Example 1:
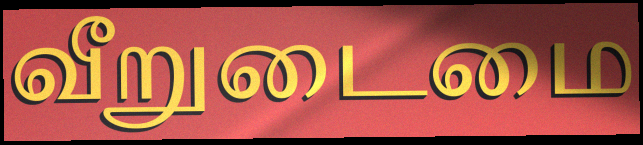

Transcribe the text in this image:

வீறுடைமை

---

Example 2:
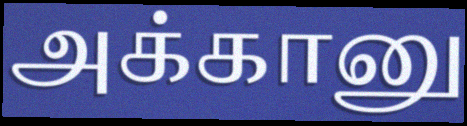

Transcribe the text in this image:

அக்கானு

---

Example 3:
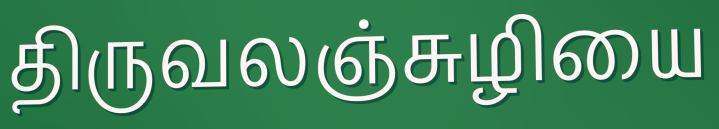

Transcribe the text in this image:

திருவலஞ்சுழியை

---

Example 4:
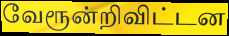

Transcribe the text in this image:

வேரூன்றிவிட்டன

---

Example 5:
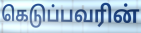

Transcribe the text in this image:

கெடுப்பவரின்